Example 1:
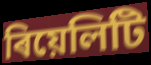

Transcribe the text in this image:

ৰিয়েলিটি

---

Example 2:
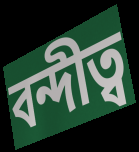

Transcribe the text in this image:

বন্দীত্ব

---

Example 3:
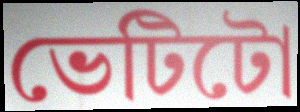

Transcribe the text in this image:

ভেটিটো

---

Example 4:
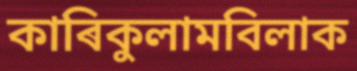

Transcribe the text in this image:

কাৰিকুলামবিলাক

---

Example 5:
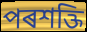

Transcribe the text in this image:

পৰশক্তি